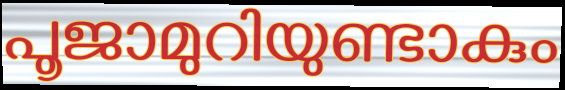
പൂജാമുറിയുണ്ടാകും